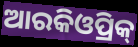
ଆରକିଓପ୍ରିକ୍